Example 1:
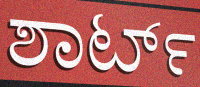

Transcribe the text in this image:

ಶಾರ್ಟ್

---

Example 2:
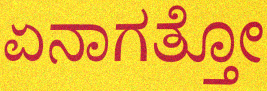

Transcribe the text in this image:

ಏನಾಗತ್ತೋ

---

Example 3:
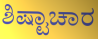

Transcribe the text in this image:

ಶಿಷ್ಟಾಚಾರ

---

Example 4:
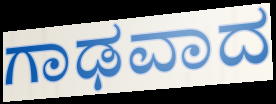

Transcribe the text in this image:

ಗಾಢವಾದ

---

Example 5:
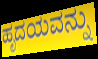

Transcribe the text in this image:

ಹೃದಯವನ್ನು